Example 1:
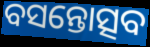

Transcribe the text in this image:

ବସନ୍ତୋତ୍ସବ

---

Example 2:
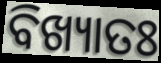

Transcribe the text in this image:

ବିଖ୍ୟାତଃ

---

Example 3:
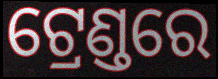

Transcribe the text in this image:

ଟ୍ରେଣ୍ଡରେ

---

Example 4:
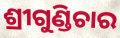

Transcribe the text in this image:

ଶ୍ରୀଗୁଣ୍ଡିଚାର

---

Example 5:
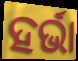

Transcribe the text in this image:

ହର୍ଭା